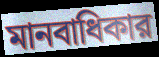
মানবাধিকার